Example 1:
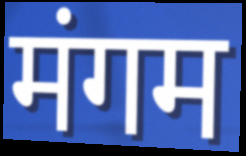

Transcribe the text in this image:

मंगम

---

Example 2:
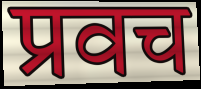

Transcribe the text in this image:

प्रवच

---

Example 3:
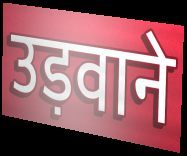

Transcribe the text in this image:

उड़वाने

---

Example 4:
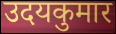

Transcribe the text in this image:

उदयकुमार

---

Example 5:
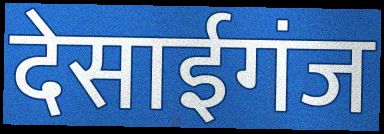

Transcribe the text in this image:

देसाईगंज